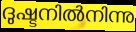
ദുഷ്ടനിൽനിന്നു